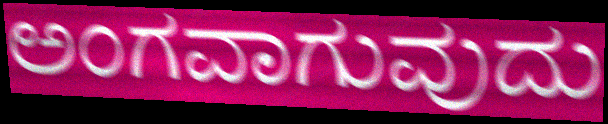
ಅಂಗವಾಗುವುದು